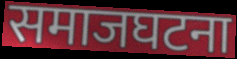
समाजघटना